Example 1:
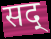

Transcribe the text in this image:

सद्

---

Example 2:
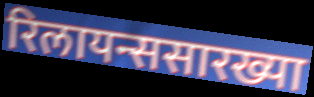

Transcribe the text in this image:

रिलायन्ससारख्या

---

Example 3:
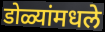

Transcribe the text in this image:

डोळ्यांमधले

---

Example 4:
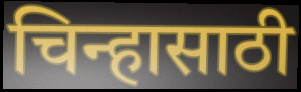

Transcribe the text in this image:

चिन्हासाठी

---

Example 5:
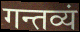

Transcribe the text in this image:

गन्तव्यं